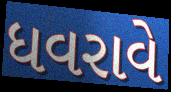
ધવરાવે